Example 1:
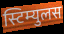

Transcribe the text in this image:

स्टिम्युलस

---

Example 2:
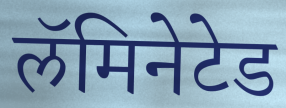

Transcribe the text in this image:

लॅमिनेटेड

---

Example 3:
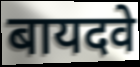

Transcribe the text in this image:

बायदवे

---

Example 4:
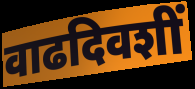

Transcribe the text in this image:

वाढदिवशीं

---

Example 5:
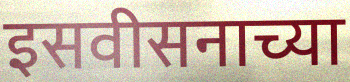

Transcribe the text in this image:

इसवीसनाच्या